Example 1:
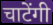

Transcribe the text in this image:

चाटेंगी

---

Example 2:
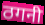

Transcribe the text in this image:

ठगनी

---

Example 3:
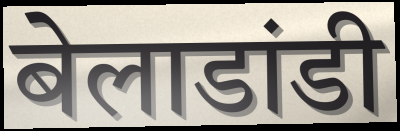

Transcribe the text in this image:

बेलाडांडी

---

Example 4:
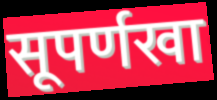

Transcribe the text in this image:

सूपर्णखा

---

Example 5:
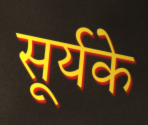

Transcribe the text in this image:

सूर्यके